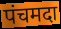
पंचमदा